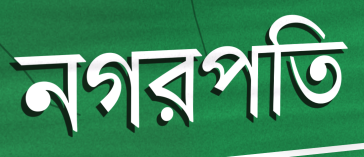
নগরপতি